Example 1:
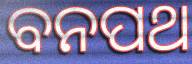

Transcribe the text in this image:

ବନପଥ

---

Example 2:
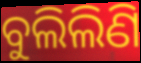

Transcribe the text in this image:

ବୁଲିଲିଣି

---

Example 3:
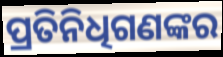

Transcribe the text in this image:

ପ୍ରତିନିଧିଗଣଙ୍କର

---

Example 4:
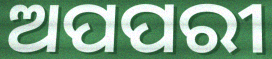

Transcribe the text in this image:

ଅପପରୀ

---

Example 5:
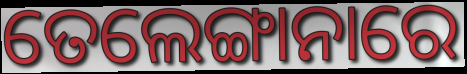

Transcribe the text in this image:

ତେଲେଙ୍ଗାନାରେ